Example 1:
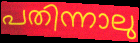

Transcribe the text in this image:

പതിന്നാലു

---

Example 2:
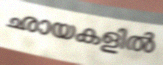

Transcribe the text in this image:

ഛായകളിൽ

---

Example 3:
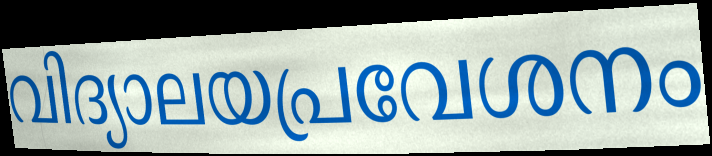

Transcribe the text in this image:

വിദ്യാലയപ്രവേശനം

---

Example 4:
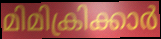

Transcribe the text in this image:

മിമിക്രിക്കാർ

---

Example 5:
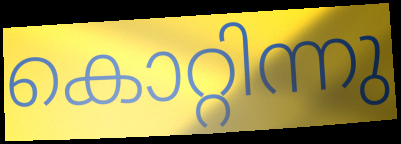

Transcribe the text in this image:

കൊറ്റിന്നു